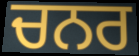
ਚਨਰ